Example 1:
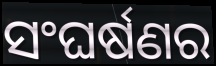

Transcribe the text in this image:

ସଂଘର୍ଷଣର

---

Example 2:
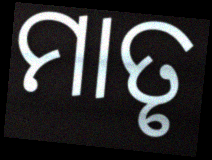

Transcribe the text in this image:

ମାତୃ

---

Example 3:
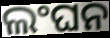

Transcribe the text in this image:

ଲଂଘନ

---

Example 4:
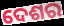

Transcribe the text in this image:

ଦେଶର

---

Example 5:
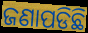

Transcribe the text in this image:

ଜଣାପଡିଛି